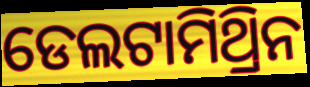
ଡେଲଟାମିଥ୍ରିନ